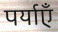
पर्याएँ